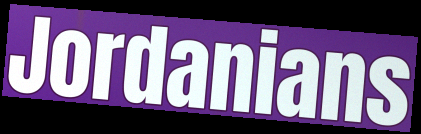
Jordanians